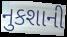
નુકશાની